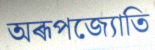
অৰূপজ্যোতি